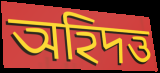
অহিদত্ত